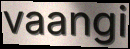
vaangi